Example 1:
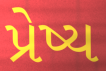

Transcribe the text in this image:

પ્રેષ્ય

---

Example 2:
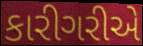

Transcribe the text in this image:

કારીગરીએ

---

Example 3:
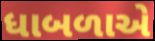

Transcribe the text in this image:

ધાબળાએ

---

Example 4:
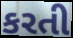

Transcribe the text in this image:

કરતી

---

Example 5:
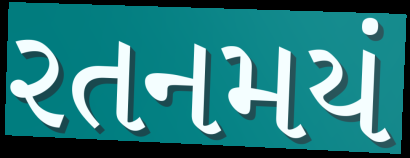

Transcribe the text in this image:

રતનમયં